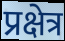
प्रक्षेत्र